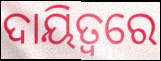
ଦାୟିତ୍ବରେ